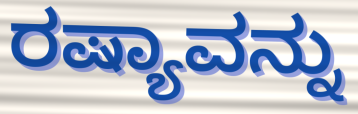
ರಷ್ಯಾವನ್ನು